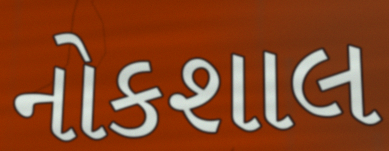
નોકશાલ